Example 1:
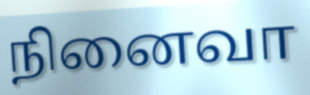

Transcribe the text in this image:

நினைவா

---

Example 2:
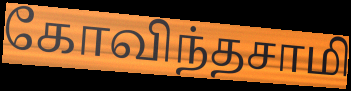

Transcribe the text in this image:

கோவிந்தசாமி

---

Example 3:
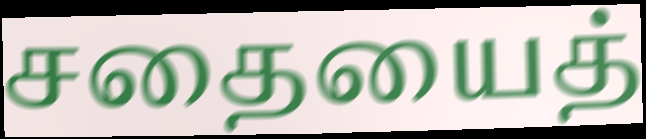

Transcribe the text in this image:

சதையைத்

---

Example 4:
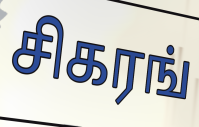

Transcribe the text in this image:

சிகரங்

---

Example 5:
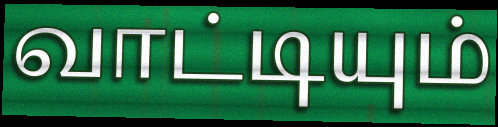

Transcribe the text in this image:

வாட்டியும்